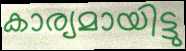
കാര്യമായിട്ടു